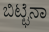
ಬಿಟ್ಟೆನಾ